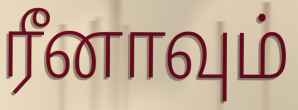
ரீனாவும்